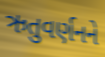
ઋતુવર્ણનને